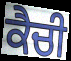
ਕੈਚੀ